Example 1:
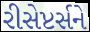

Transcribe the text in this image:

રીસેપ્ટર્સને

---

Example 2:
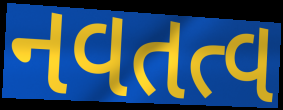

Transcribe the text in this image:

નવતત્વ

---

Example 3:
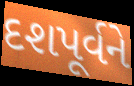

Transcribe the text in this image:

દશપૂર્વને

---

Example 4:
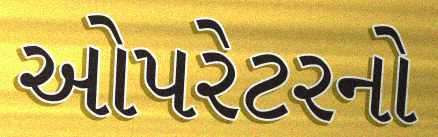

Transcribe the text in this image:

ઓપરેટરનો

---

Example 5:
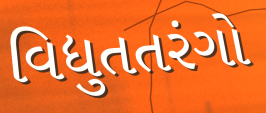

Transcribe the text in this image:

વિદ્યુતતરંગો